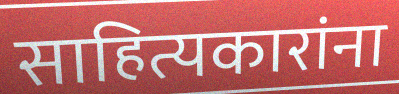
साहित्यकारांना